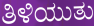
ತಿಳಿಯುತು